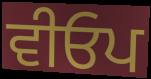
ਵੀਓਪ